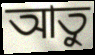
আতু